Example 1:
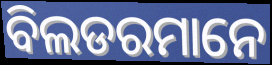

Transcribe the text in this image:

ବିଲଡରମାନେ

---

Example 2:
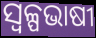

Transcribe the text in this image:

ସ୍ୱଳ୍ପଭାଷୀ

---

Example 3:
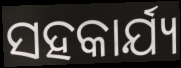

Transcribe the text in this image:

ସହକାର୍ଯ୍ୟ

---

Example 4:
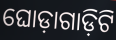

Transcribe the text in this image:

ଘୋଡ଼ାଗାଡ଼ିଟି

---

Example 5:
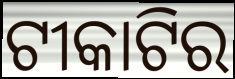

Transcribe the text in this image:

ଟୀକାଟିର